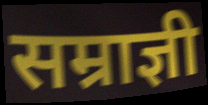
सम्राज्ञी